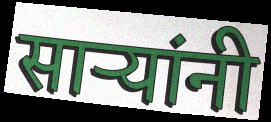
साऱ्यांनी